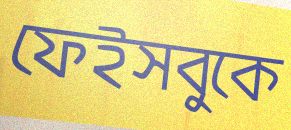
ফেইসবুকে